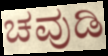
ಚವುಡಿ